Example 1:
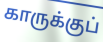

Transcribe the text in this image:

காருக்குப்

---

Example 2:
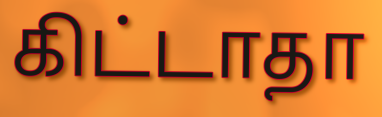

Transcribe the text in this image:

கிட்டாதா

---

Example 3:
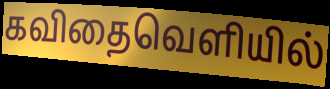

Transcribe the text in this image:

கவிதைவெளியில்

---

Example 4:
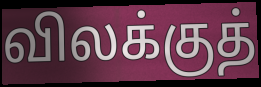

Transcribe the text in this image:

விலக்குத்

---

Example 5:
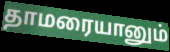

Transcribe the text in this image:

தாமரையானும்